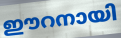
ഈറനായി